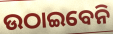
ଉଠାଇବେନି